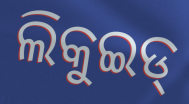
ଲିକୁଇଡ୍